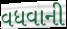
વધવાની